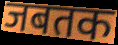
जबतक